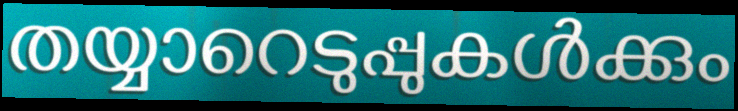
തയ്യാറെടുപ്പുകൾക്കും